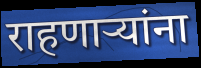
राहणाऱ्यांना